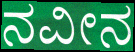
ನವೀನ